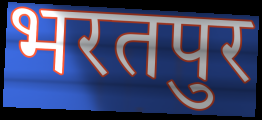
भरतपुर